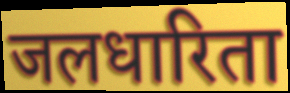
जलधारिता